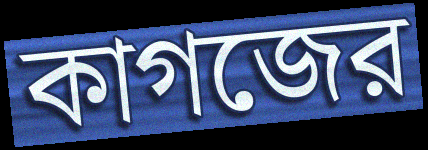
কাগজের